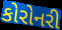
કોરોનરી